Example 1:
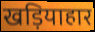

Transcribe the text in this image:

खड़ियाहार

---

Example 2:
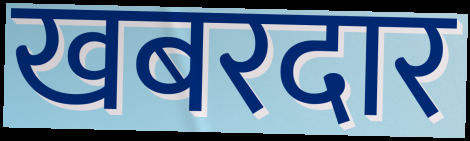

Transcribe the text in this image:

खबरदार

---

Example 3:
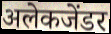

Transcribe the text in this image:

अलेकजेंडर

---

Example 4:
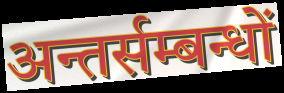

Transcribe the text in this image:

अन्तर्सम्बन्धों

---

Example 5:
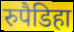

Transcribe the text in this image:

रुपैडिहा